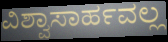
ವಿಶ್ವಾಸಾರ್ಹವಲ್ಲ